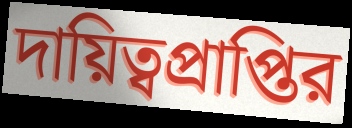
দায়িত্বপ্রাপ্তির